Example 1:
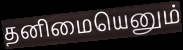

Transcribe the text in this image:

தனிமையெனும்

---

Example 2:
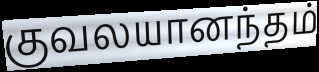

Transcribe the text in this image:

குவலயானந்தம்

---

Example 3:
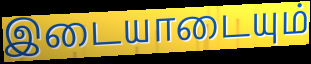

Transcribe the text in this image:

இடையாடையும்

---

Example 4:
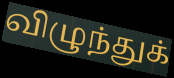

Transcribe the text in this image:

விழுந்துக்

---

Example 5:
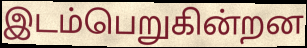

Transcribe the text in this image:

இடம்பெறுகின்றன